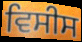
ਵਿਸੀਸ